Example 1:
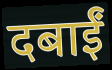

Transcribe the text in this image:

दबाईं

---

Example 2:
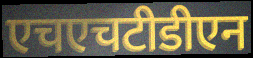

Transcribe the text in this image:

एचएचटीडीएन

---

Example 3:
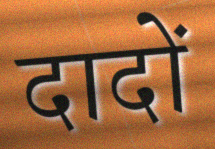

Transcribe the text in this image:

दादों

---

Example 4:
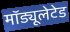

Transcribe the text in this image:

मॉड्यूलेटेड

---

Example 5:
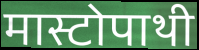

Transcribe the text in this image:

मास्टोपाथी